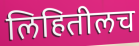
लिहितीलच